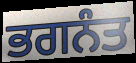
ਭਗਨੰਤ